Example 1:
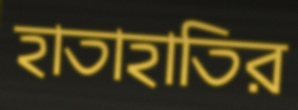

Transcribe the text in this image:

হাতাহাতির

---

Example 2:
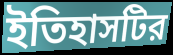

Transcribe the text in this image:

ইতিহাসটির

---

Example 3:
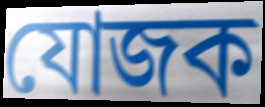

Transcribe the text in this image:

যোজক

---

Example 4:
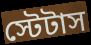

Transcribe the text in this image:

স্টেটাস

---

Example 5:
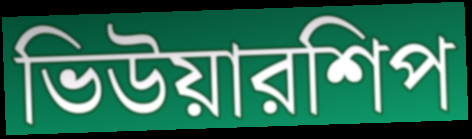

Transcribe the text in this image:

ভিউয়ারশিপ